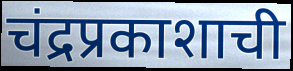
चंद्रप्रकाशाची